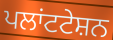
ਪਲਾਂਟਟੇਸ਼ਨ